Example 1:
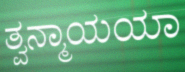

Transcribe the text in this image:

ತ್ವನ್ಮಾಯಯಾ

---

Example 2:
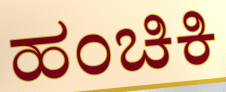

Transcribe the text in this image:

ಹಂಚಿಕಿ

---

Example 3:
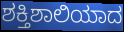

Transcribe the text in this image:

ಶಕ್ತಿಶಾಲಿಯಾದ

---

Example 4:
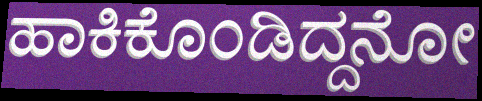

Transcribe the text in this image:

ಹಾಕಿಕೊಂಡಿದ್ದನೋ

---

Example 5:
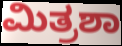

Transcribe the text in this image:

ಮಿತ್ರಶಾ